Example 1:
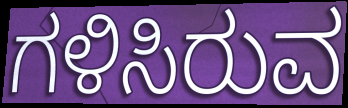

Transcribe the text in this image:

ಗಳಿಸಿರುವ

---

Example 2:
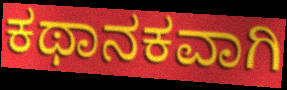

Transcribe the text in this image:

ಕಥಾನಕವಾಗಿ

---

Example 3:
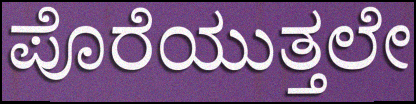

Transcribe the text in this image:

ಪೊರೆಯುತ್ತಲೇ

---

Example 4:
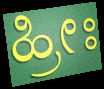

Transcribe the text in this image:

ಹ್ರೀಃ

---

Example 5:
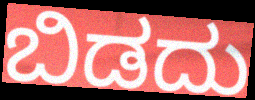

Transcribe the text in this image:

ಬಿಡದು